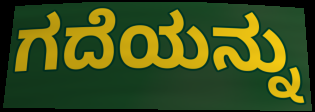
ಗದೆಯನ್ನು